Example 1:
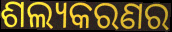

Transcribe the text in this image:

ଶଲ୍ୟକରଣର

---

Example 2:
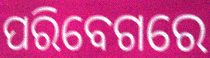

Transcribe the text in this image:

ପରିବେଗରେ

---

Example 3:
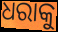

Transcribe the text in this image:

ଧରାକୁ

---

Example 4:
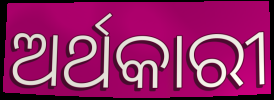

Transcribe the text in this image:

ଅର୍ଥକାରୀ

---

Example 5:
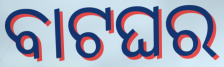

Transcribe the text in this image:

ବାଟଘର